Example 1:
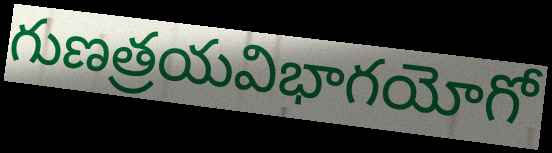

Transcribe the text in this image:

గుణత్రయవిభాగయోగో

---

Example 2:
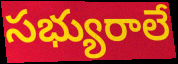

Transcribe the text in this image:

సభ్యురాలే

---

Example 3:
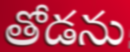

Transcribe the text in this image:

తోడను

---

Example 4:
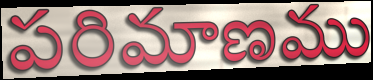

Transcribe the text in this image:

పరిమాణము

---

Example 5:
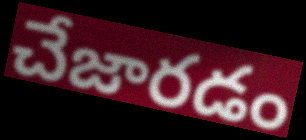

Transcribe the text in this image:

చేజారడం